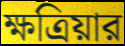
ক্ষত্রিয়ার